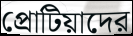
প্রোটিয়াদের